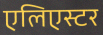
एलिएस्टर